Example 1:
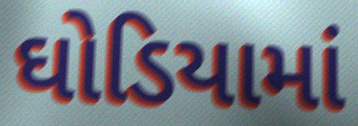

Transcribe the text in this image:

ઘોડિયામાં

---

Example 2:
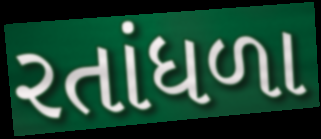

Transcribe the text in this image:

રતાંધળા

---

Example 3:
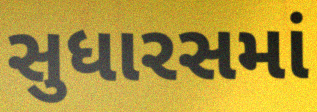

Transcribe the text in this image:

સુધારસમાં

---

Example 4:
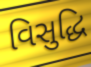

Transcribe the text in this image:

વિસુદ્ધિ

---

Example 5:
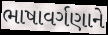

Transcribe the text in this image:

ભાષાવર્ગણાને